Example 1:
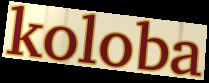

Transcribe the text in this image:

koloba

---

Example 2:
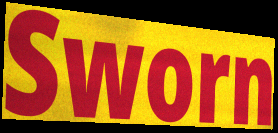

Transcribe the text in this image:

Sworn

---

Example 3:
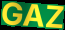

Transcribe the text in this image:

GAZ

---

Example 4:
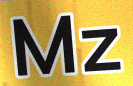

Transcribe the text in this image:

Mz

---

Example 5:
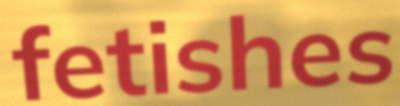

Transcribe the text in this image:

fetishes